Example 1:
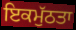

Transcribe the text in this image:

ਇਕਮੁੱਠਤਾ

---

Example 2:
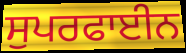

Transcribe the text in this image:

ਸੁਪਰਫਾਈਨ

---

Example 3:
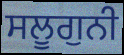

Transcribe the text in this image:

ਸਲੂਗੁਨੀ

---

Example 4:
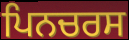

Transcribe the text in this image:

ਪਿਨਚਰਸ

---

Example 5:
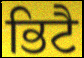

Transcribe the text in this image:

ਭਿਟੈ